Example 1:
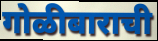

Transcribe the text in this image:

गोळीबाराची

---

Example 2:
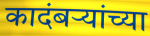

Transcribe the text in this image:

कादंबर्‍यांच्या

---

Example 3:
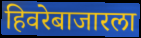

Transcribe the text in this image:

हिवरेबाजारला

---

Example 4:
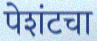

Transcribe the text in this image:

पेशंटचा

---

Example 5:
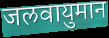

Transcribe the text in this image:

जलवायुमान